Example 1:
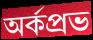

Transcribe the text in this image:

অর্কপ্রভ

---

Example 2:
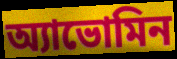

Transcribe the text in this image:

অ্যাভোমিন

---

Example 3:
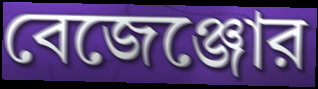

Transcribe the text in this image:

বেজেঞ্জোর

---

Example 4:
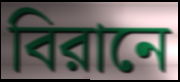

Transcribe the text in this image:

বিরানে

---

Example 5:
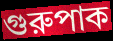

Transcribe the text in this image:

গুরুপাক